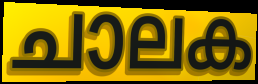
ചാലക